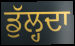
ਡੁੱਲ੍ਹਦਾ